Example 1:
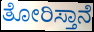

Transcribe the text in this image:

ತೋರಿಸ್ತಾನೆ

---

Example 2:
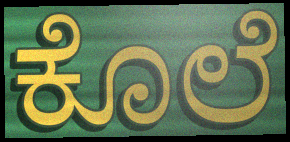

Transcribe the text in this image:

ಕೊಲೆ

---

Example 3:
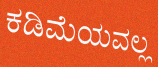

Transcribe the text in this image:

ಕಡಿಮೆಯವಲ್ಲ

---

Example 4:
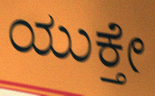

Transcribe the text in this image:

ಯುಕ್ತೇ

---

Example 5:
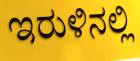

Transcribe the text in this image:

ಇರುಳಿನಲ್ಲಿ